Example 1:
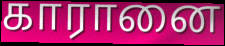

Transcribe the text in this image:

காரானை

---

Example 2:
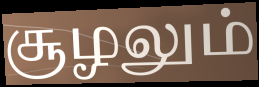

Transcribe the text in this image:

சூழலும்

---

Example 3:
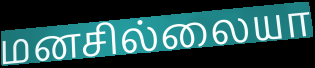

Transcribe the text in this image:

மனசில்லையா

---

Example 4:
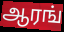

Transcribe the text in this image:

ஆரங்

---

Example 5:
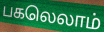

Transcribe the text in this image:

பகலெலாம்